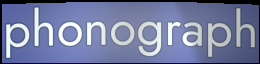
phonograph